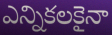
ఎన్నికలకైనా